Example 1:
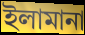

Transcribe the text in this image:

ইলামানা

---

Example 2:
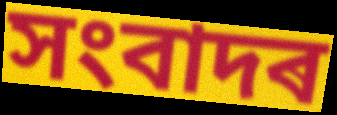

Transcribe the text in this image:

সংবাদৰ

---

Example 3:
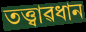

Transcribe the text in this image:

তত্ত্বাৱধান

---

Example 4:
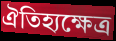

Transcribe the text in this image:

ঐতিহ্যক্ষেত্ৰ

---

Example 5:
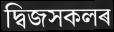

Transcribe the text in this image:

দ্বিজসকলৰ